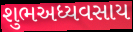
શુભઅધ્યવસાય